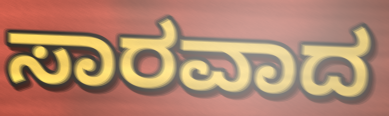
ಸಾರವಾದ